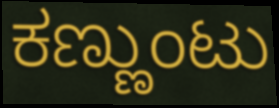
ಕಣ್ಣುಂಟು